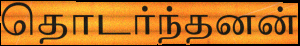
தொடர்ந்தனன்